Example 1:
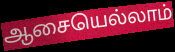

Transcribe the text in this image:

ஆசையெல்லாம்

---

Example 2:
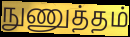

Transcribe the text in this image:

நுணுத்தம்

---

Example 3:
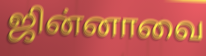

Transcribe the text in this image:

ஜின்னாவை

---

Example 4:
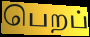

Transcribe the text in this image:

பெறப்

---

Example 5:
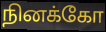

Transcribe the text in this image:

நினக்கோ